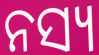
ନସ୍ୟ